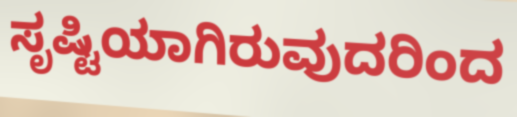
ಸೃಷ್ಟಿಯಾಗಿರುವುದರಿಂದ